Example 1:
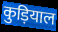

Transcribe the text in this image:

कुड़ियाल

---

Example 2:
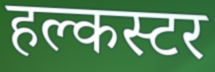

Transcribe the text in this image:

हल्कस्टर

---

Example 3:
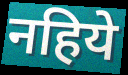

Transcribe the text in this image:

नहिये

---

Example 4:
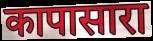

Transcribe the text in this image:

कापासारा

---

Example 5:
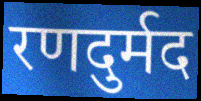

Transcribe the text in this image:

रणदुर्मद